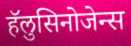
हॅलुसिनोजेन्स